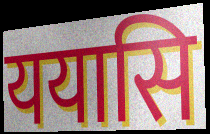
ययासि